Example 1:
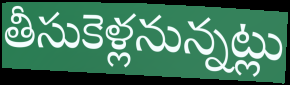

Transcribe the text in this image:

తీసుకెళ్లనున్నట్లు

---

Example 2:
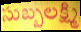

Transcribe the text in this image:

సుబ్బలక్ష్మి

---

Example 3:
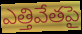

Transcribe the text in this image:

ఎత్తివేతపై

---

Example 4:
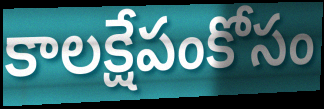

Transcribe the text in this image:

కాలక్షేపంకోసం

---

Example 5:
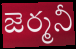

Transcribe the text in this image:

జెర్మనీ